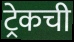
ट्रेकची